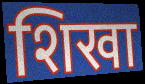
शिखा